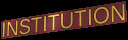
INSTITUTION